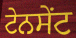
ਟੇਨਸੇਂਟ